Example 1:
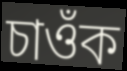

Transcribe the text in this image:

চাওঁক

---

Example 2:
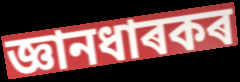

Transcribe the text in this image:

জ্ঞানধাৰকৰ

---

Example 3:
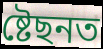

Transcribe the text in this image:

ষ্টেছনত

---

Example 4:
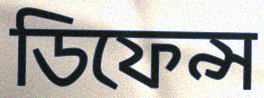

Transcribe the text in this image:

ডিফেন্স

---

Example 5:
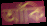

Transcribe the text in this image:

আঁকি